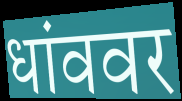
धांववर